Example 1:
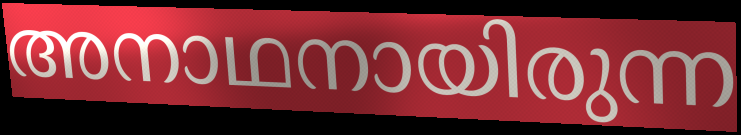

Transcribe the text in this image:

അനാഥനായിരുന്ന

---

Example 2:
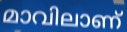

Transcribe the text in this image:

മാവിലാണ്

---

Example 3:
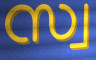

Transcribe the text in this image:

സ്വ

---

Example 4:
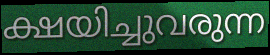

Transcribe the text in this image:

ക്ഷയിച്ചുവരുന്ന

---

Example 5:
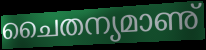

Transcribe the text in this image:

ചൈതന്യമാണു്